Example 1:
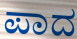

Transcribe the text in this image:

ಪಾದ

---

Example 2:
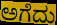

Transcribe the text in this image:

ಅಗೆದು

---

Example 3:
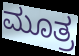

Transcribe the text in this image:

ಮೂತ್ರ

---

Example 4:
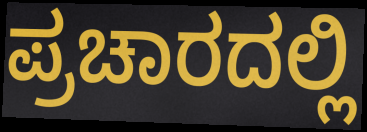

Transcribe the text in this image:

ಪ್ರಚಾರದಲ್ಲಿ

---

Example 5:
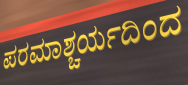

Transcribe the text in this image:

ಪರಮಾಶ್ಚರ್ಯದಿಂದ